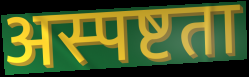
अस्पष्टता